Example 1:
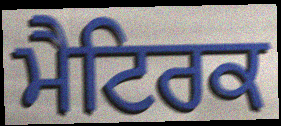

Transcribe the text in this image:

ਮੈਟਿਰਕ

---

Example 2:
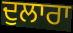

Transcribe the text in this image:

ਦੁਲਾਰਾ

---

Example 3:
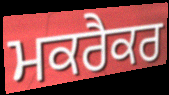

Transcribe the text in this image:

ਮਕਰੈਕਰ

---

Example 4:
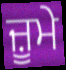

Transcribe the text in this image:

ਜ਼ੂਮੇ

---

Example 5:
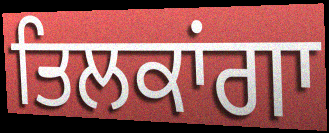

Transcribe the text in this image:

ਤਿਲਕਾਂਗਾ